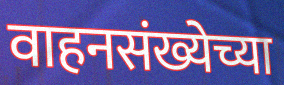
वाहनसंख्येच्या